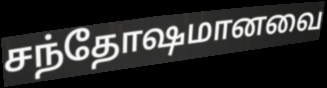
சந்தோஷமானவை